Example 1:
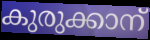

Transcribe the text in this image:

കുരുക്കാന്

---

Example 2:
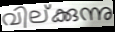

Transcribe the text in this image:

വില്ക്കുന്നു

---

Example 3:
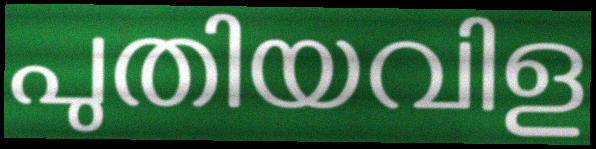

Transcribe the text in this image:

പുതിയവിള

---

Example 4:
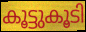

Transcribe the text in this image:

കൂട്ടുകൂടി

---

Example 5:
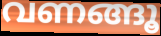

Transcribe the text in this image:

വണങ്ങൂ